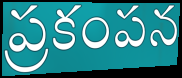
ప్రకంపన